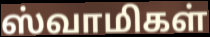
ஸ்வாமிகள்